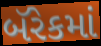
બૅરેકમાં